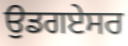
ਉਡਗਏਸਰ